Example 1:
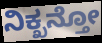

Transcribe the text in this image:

ನಿಕ್ಖನ್ತೋ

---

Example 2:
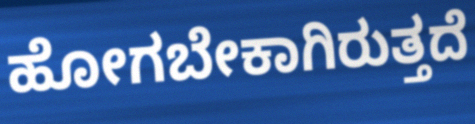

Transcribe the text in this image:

ಹೋಗಬೇಕಾಗಿರುತ್ತದೆ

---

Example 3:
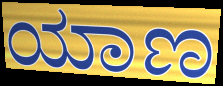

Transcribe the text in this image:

ಯಾಣ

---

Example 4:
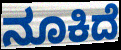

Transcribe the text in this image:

ನೂಕಿದೆ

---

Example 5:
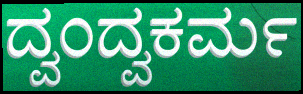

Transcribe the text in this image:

ದ್ವಂದ್ವಕರ್ಮ